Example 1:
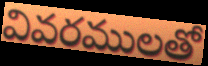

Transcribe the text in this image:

వివరములతో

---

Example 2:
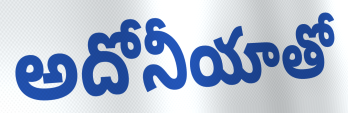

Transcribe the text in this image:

అదోనీయాతో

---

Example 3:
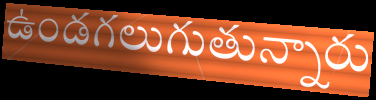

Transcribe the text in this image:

ఉండగలుగుతున్నారు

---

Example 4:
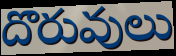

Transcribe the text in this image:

దొరువులు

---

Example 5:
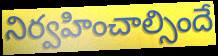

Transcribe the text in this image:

నిర్వహించాల్సిందే